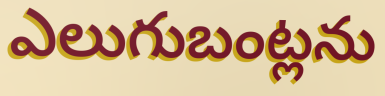
ఎలుగుబంట్లను